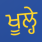
ਖੂਲ੍ਹ੍ਹੇ